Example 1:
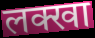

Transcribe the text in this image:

लक्खा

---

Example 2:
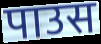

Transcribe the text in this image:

पाउस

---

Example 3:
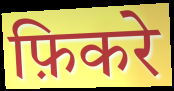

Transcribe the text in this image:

फ़िकरे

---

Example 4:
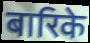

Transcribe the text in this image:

बारिके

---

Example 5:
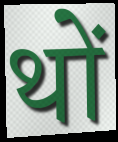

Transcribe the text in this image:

थों